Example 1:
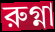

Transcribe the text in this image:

রুগ্না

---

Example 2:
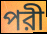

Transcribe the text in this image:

পরী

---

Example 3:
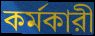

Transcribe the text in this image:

কর্মকারী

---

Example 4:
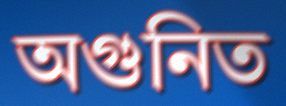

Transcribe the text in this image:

অগুনিত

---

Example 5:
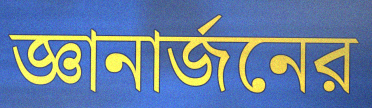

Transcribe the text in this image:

জ্ঞানার্জনের